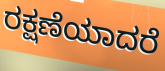
ರಕ್ಷಣೆಯಾದರೆ